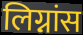
लिग्नांस